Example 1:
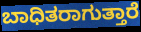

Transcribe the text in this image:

ಬಾಧಿತರಾಗುತ್ತಾರೆ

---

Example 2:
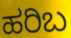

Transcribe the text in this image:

ಹರಿಬ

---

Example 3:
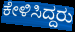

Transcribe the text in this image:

ಕೇಳಿಸಿದ್ದರು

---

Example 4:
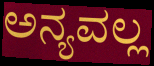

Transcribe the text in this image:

ಅನ್ಯವಲ್ಲ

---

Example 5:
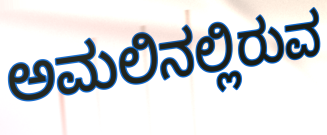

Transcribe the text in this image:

ಅಮಲಿನಲ್ಲಿರುವ